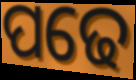
ପଢେ